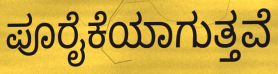
ಪೂರೈಕೆಯಾಗುತ್ತವೆ